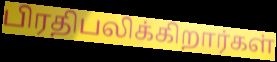
பிரதிபலிக்கிறார்கள்